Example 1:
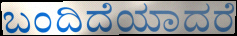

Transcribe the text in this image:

ಬಂದಿದೆಯಾದರೆ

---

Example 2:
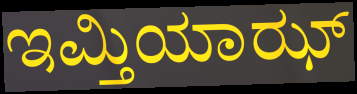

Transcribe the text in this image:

ಇಮ್ತಿಯಾಝ್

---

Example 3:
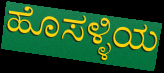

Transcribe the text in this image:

ಹೊಸಳ್ಳಿಯ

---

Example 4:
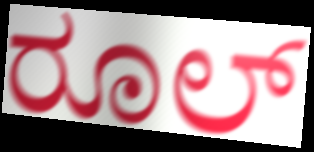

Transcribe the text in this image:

ರೂಲ್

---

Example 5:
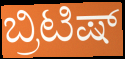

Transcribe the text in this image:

ಬ್ರಿಟಿಷ್